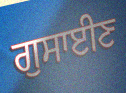
ਗੁਸਾਈਣ